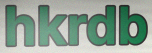
hkrdb